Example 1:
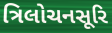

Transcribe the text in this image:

ત્રિલોચનસૂરિ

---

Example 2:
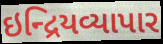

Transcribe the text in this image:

ઇન્દ્રિયવ્યાપાર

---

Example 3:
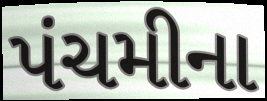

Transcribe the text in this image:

પંચમીના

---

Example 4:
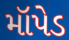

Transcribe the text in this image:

મૉપેડ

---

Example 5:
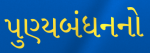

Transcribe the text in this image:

પુણ્યબંધનનો